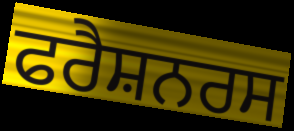
ਫਰੈਸ਼ਨਰਸ